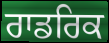
ਰਾਡਰਿਕ